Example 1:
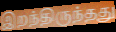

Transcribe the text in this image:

இறந்திருந்தது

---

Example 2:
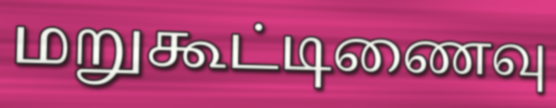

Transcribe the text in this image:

மறுகூட்டிணைவு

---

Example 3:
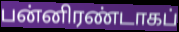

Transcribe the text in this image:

பன்னிரண்டாகப்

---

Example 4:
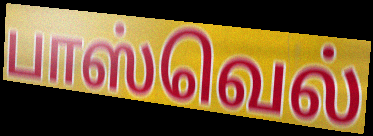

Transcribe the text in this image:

பாஸ்வெல்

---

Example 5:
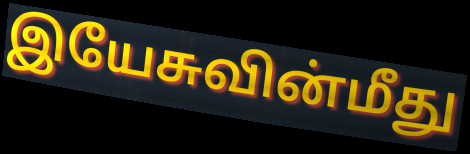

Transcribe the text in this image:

இயேசுவின்மீது